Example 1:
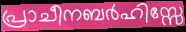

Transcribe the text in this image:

പ്രാചീനബർഹിസ്സേ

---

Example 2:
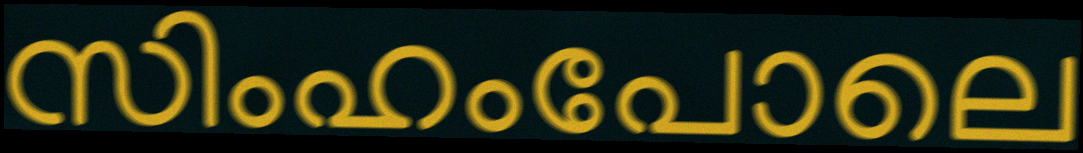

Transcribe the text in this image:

സിംഹംപോലെ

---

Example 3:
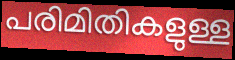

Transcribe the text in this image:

പരിമിതികളുള്ള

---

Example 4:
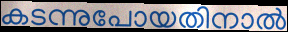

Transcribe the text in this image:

കടന്നുപോയതിനാൽ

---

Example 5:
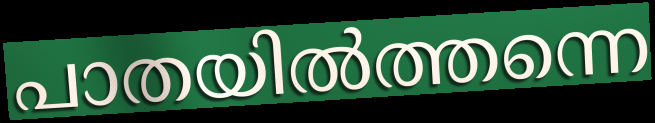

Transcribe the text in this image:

പാതയിൽത്തന്നെ